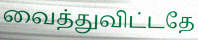
வைத்துவிட்டதே